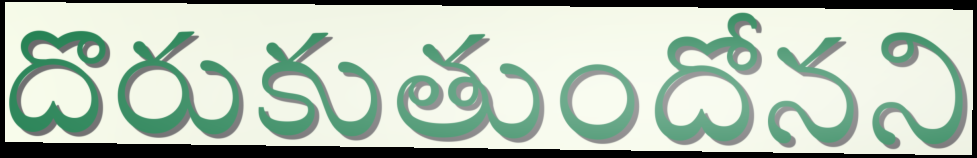
దొరుకుతుందోనని